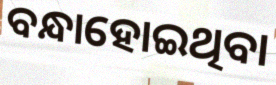
ବନ୍ଧାହୋଇଥିବା